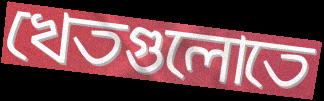
খেতগুলোতে